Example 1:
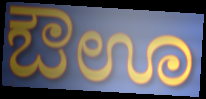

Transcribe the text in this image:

ಔಊ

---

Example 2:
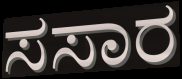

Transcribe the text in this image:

ಸಸಾರ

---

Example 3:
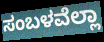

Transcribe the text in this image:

ಸಂಬಳವೆಲ್ಲಾ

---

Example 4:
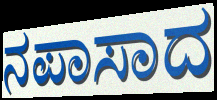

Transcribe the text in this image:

ನಪಾಸಾದ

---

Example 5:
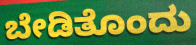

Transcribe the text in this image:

ಬೇಡಿತೊಂದು